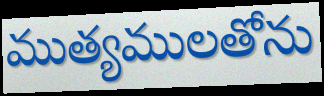
ముత్యములతోను